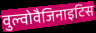
वुल्वोवैजिनाइटिस